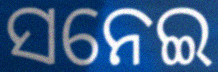
ସନେଇ